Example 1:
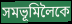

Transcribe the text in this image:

সমভূমিলৈকে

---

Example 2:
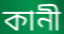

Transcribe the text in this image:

কানী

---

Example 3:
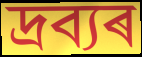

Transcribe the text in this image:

দ্ৰব্যৰ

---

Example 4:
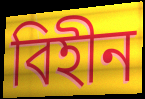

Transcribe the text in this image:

বিহীন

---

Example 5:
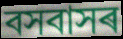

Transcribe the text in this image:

বসবাসৰ